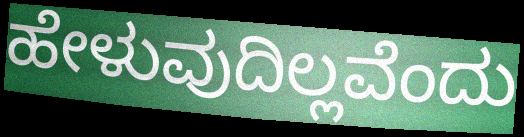
ಹೇಳುವುದಿಲ್ಲವೆಂದು